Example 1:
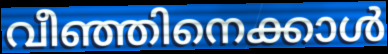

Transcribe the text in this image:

വീഞ്ഞിനെക്കാൾ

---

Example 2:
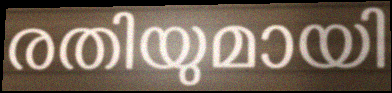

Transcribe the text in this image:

രതിയുമായി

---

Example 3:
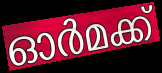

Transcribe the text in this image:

ഓർമക്ക്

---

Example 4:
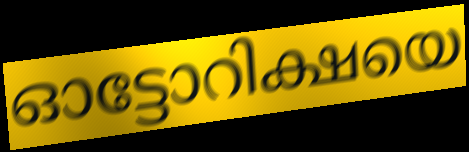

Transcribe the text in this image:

ഓട്ടോറിക്ഷയെ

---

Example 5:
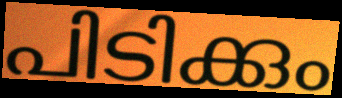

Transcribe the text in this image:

പിടിക്കും